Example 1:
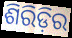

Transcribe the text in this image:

ଶିରିଡ଼ିର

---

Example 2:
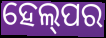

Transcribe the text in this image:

ହେଲ୍‌ପର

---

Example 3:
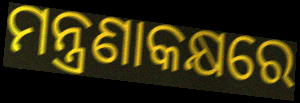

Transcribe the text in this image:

ମନ୍ତ୍ରଣାକକ୍ଷରେ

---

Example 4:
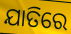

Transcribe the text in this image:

ଯାତିରେ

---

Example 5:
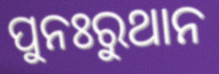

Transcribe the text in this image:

ପୁନଃରୁଥାନ